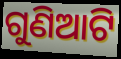
ଗୁଣିଆଟି